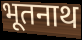
भूतनाथ